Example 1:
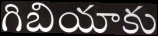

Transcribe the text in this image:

గిబియాకు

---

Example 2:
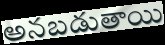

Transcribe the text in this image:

అనబడుతాయి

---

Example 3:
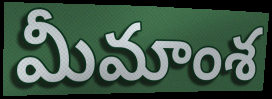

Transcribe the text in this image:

మీమాంశ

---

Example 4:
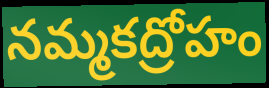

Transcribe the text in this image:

నమ్మకద్రోహం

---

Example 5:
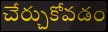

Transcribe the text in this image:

చేర్చుకోవడం